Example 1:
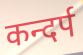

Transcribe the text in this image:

कन्दर्प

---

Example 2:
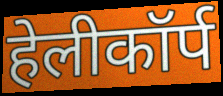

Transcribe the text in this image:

हेलीकॉर्प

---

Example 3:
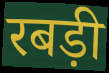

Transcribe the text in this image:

रबड़ी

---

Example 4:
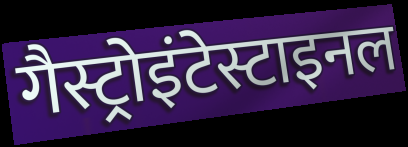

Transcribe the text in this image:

गैस्ट्रोइंटेस्टाइनल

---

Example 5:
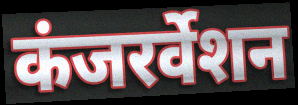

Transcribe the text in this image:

कंजरर्वेशन